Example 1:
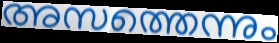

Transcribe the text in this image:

അസത്തെന്നും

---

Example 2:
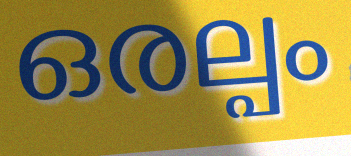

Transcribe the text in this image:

ഒരല്പം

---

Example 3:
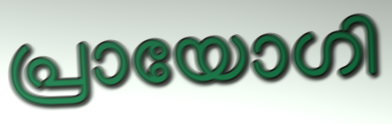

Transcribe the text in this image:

പ്രായോഗി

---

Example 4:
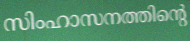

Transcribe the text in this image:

സിംഹാസനത്തിന്റെ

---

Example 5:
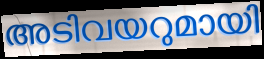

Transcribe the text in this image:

അടിവയറുമായി